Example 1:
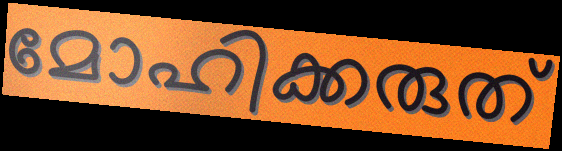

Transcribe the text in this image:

മോഹിക്കരുത്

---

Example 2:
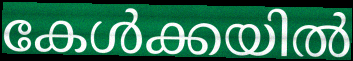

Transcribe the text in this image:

കേൾക്കയിൽ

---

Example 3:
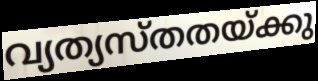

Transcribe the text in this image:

വ്യത്യസ്തതയ്ക്കു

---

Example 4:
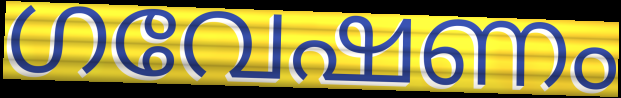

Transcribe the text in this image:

ഗവേഷണം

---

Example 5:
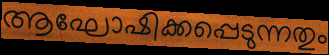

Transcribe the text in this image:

ആഘോഷിക്കപ്പെടുന്നതും